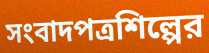
সংবাদপত্রশিল্পের